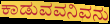
ಕಾಡುವವನಿವನು